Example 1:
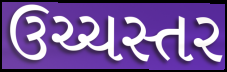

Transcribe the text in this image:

ઉચ્ચસ્તર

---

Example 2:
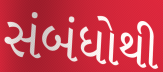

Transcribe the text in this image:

સંબંધોથી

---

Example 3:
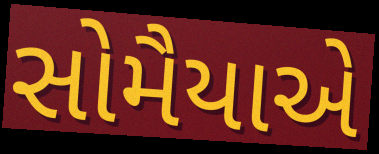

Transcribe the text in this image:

સોમૈયાએ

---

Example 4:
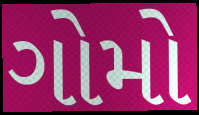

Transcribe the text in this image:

ગોમો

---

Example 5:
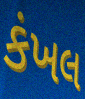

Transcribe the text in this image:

કંખલ